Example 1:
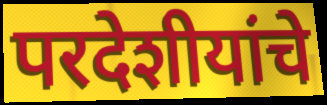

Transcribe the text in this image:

परदेशीयांचे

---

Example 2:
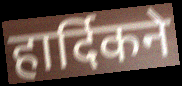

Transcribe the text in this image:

हार्दिकने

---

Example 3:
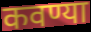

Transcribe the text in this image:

कवण्या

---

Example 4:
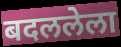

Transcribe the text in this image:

बदललेला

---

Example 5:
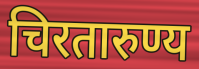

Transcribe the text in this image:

चिरतारुण्य